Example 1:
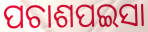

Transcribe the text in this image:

ପଚାଶପଇସା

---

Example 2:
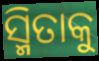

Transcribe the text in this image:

ସ୍ମିତାକୁ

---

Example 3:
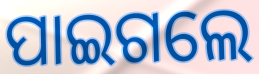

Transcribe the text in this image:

ପାଇଗଲେ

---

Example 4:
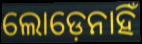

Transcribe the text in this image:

ଲୋଡ଼େନାହିଁ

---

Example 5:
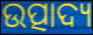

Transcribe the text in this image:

ଉତ୍ପାଦ୍ୟ